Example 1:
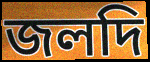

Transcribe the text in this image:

জলদি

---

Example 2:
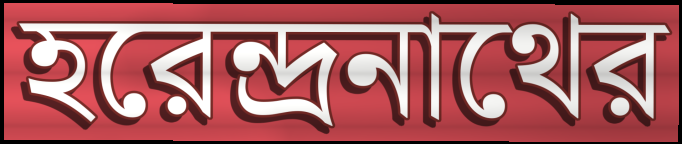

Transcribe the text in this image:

হরেন্দ্রনাথের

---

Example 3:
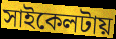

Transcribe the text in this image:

সাইকেলটায়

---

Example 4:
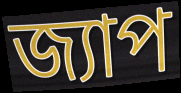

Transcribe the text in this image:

জ্যাপ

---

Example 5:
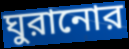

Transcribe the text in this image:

ঘুরানোর